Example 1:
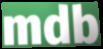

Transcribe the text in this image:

mdb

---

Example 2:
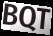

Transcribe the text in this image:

BQT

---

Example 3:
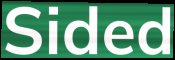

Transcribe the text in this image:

Sided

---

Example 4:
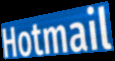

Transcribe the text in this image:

Hotmail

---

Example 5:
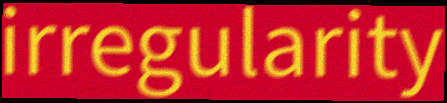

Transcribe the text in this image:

irregularity